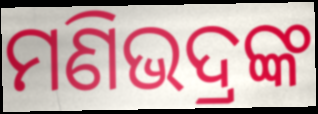
ମଣିଭଦ୍ରଙ୍କ